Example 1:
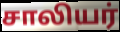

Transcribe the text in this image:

சாலியர்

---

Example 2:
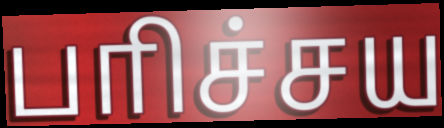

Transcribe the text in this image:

பரிச்சய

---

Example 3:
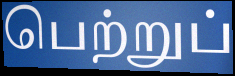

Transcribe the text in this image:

பெற்றுப்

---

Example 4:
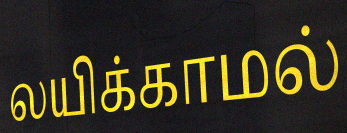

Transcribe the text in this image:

லயிக்காமல்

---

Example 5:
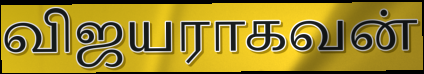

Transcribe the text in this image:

விஜயராகவன்